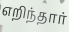
எறிந்தார்